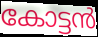
കോട്ടൻ